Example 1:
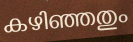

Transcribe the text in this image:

കഴിഞ്ഞതും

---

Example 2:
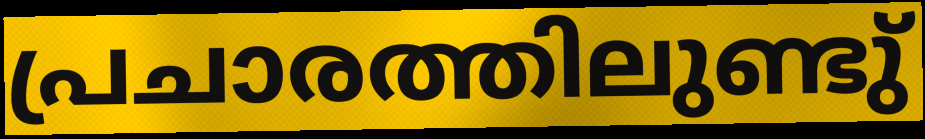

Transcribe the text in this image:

പ്രചാരത്തിലുണ്ടു്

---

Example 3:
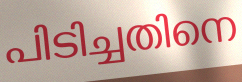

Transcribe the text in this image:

പിടിച്ചതിനെ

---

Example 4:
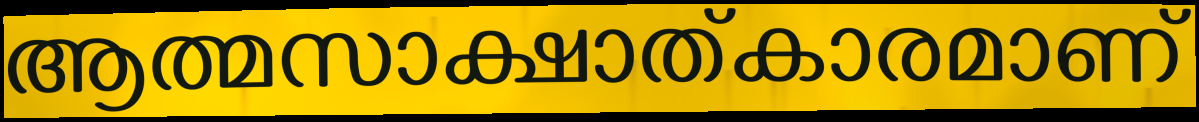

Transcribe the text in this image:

ആത്മസാക്ഷാത്കാരമാണ്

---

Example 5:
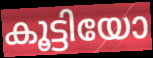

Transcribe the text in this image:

കൂട്ടിയോ